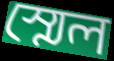
স্মেল